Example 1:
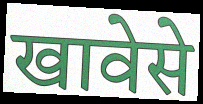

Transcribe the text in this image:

खावेसे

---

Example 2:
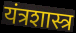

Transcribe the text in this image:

यंत्रशास्त्र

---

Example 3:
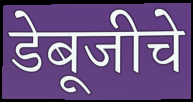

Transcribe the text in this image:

डेबूजीचे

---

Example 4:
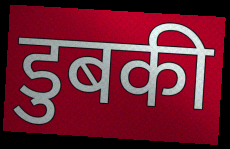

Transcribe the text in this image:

डुबकी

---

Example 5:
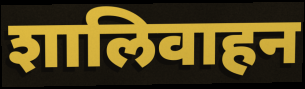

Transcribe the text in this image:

शालिवाहन